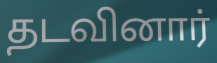
தடவினார்